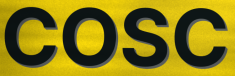
COSC